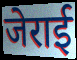
जेराई